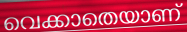
വെക്കാതെയാണ്